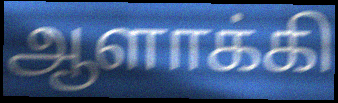
ஆளாக்கி